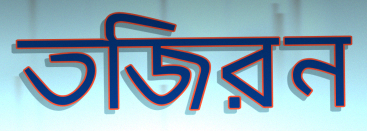
তজিরন